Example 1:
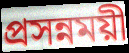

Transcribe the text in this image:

প্রসন্নময়ী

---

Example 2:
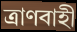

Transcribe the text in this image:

ত্রাণবাহী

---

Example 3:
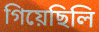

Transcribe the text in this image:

গিয়েছিলি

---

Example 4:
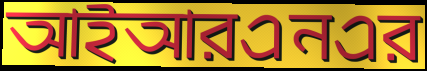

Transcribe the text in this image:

আইআরএনএর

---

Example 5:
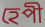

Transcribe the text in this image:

হেপী